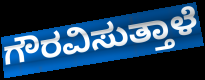
ಗೌರವಿಸುತ್ತಾಳೆ